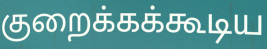
குறைக்கக்கூடிய